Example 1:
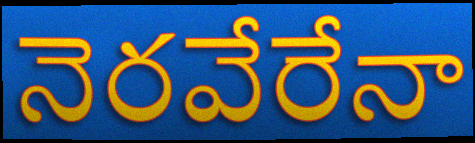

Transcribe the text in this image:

నెరవేరేనా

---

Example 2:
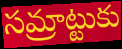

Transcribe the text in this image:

సమ్రాట్టుకు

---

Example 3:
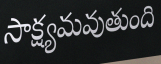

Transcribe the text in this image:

సాక్ష్యమవుతుంది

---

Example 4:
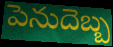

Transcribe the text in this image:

పెనుదెబ్బ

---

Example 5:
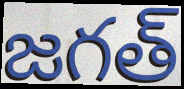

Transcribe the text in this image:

జగత్